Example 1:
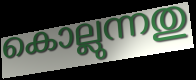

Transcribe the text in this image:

കൊല്ലുന്നതു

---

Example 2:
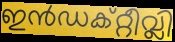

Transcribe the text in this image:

ഇൻഡക്റ്റീവ്ലി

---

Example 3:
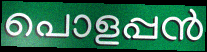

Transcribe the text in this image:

പൊളപ്പൻ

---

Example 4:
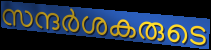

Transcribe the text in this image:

സന്ദർശകരുടെ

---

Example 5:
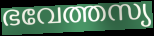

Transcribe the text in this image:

ഭവേത്തസ്യ